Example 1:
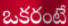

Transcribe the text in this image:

ఒకరంటే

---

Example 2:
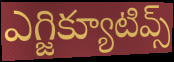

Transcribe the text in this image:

ఎగ్జిక్యూటివ్స్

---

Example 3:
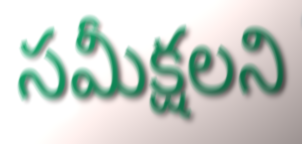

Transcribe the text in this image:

సమీక్షలని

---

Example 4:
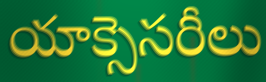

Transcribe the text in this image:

యాక్సెసరీలు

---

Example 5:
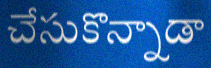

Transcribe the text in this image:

చేసుకొన్నాడా